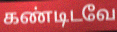
கண்டிடவே